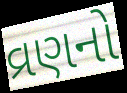
વ્રણનો